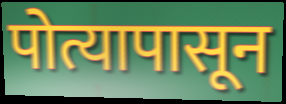
पोत्यापासून